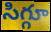
సిగ్గూ